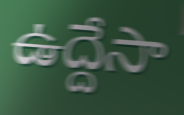
ఉద్దేసా